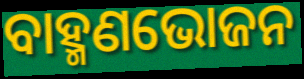
ବାହ୍ମଣଭୋଜନ